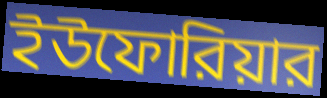
ইউফোরিয়ার